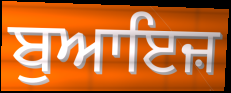
ਬੁਆਇਜ਼